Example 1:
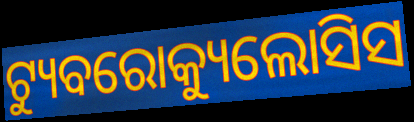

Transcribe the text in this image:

ଟ୍ୟୁବରୋକ୍ୟୁଲୋସିସ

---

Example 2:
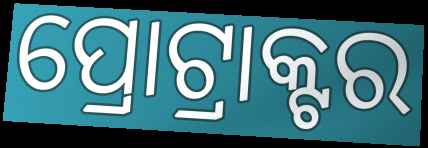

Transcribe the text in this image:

ପ୍ରୋଟ୍ରାକ୍ଟର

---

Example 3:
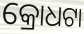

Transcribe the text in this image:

କ୍ରୋଧଟା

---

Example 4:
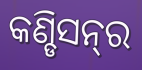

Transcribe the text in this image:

କଣ୍ଡିସନ୍‌ର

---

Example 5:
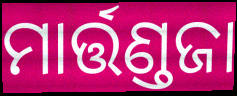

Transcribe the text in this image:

ମାର୍ତ୍ତଣ୍ଡଜା